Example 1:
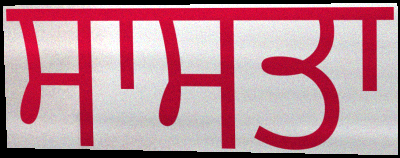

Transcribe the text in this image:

ਸਾਸਤਾ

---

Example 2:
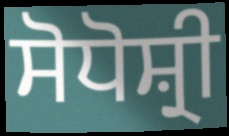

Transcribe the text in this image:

ਸੋਧੋਸ਼੍ਰੀ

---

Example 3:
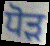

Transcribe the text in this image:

ਧੋੜ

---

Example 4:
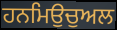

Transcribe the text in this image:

ਹਨਮਿਉਚੁਅਲ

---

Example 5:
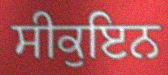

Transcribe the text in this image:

ਸੀਕੁਇਨ